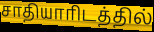
சாதியாரிடத்தில்